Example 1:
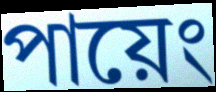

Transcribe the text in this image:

পায়েং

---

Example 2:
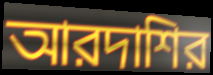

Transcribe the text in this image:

আরদাশির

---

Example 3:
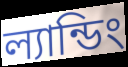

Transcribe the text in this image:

ল্যান্ডিং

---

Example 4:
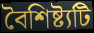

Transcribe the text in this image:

বৈশিষ্ট্যটি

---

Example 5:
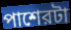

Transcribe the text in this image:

পাশেরটা